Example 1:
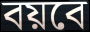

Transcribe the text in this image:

বয়বে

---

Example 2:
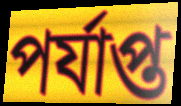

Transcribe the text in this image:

পর্যাপ্ত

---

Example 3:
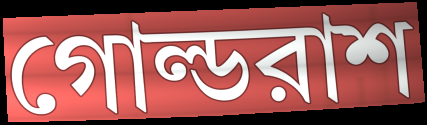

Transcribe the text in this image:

গোল্ডরাশ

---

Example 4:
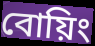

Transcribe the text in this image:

বোয়িং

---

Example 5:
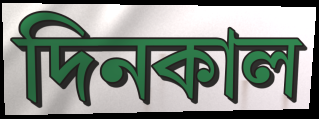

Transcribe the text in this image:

দিনকাল